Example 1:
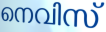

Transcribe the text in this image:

നെവിസ്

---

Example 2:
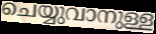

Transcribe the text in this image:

ചെയ്യുവാനുള്ള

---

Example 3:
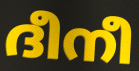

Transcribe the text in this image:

ദീനീ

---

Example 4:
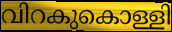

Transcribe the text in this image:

വിറകുകൊള്ളി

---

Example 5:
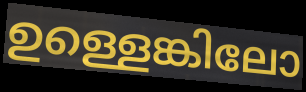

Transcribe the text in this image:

ഉള്ളെങ്കിലോ